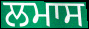
ਲਮਾਸ